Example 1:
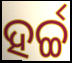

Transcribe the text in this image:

ହର୍ଚ୍ଚ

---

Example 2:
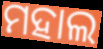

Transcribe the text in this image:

ମହାଲ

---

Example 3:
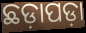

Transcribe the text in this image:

ଛଡ଼ାପଡ଼ା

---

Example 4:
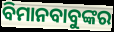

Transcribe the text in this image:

ବିମାନବାବୁଙ୍କର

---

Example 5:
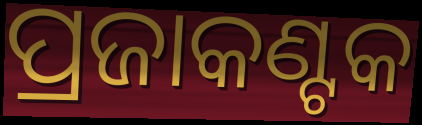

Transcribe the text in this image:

ପ୍ରଜାକଣ୍ଟକ